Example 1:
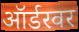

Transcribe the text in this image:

ऑर्डरवर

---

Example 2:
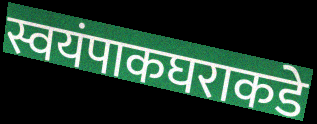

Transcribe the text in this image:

स्वयंपाकघराकडे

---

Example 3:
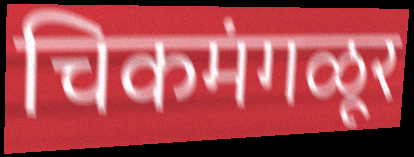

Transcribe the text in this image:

चिकमंगळूर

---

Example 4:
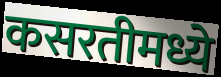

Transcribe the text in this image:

कसरतीमध्ये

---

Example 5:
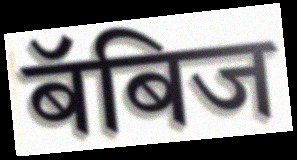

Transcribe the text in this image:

बॅबिज